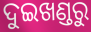
ଦୁଇଖଣ୍ଡରୁ